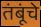
तंबूंचे